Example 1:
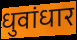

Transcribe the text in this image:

धुवांधार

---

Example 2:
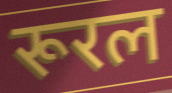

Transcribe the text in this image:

रूरल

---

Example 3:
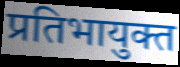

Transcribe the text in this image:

प्रतिभायुक्त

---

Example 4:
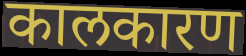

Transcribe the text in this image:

कालकारण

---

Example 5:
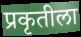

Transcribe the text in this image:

प्रकृतीला